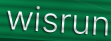
wisrun